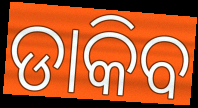
ଡାକିବ